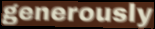
generously